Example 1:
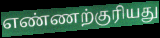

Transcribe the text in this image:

எண்ணற்குரியது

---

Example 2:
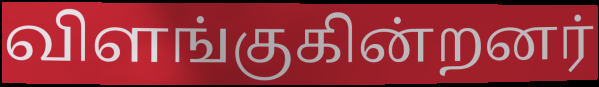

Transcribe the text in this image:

விளங்குகின்றனர்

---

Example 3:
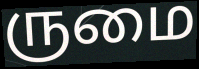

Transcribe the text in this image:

ருமை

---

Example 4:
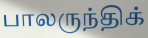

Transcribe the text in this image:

பாலருந்திக்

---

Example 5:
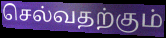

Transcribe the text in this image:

செல்வதற்கும்